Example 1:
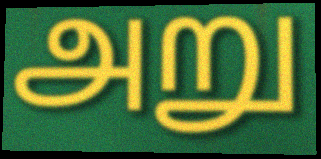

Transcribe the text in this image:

அறு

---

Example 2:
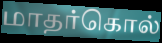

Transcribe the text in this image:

மாதர்கொல்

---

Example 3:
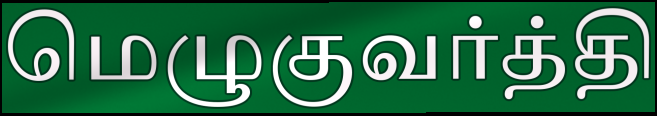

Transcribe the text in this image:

மெழுகுவர்த்தி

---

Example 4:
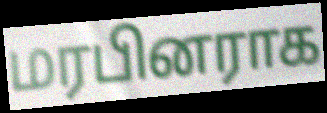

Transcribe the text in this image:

மரபினராக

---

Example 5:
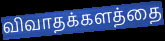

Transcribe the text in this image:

விவாதக்களத்தை